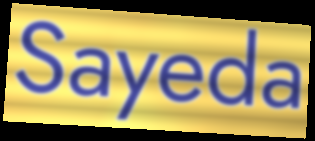
Sayeda